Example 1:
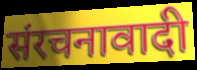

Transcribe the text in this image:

संरचनावादी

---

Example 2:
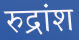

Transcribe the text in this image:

रुद्रांश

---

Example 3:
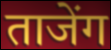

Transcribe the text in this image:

ताजेंग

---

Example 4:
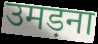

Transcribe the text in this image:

उमड़ना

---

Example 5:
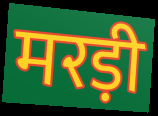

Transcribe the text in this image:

मरड़ी